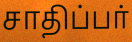
சாதிப்பர்